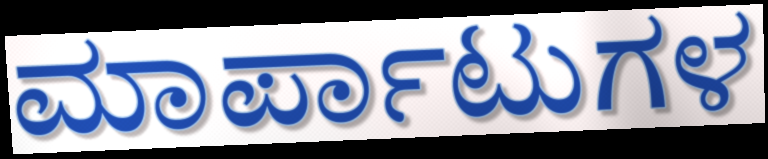
ಮಾರ್ಪಾಟುಗಳ